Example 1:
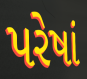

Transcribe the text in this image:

પરેષાં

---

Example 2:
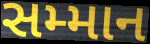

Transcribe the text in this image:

સમ્માન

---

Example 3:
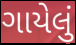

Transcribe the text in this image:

ગાયેલું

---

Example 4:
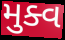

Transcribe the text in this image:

મુક્વ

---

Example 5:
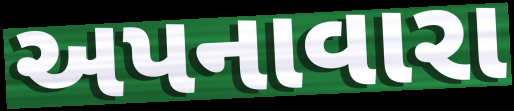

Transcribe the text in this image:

અપનાવારા